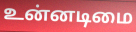
உன்னடிமை